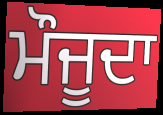
ਮੌਜੂਦਾ